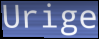
Urige